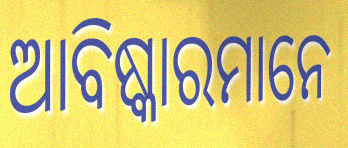
ଆବିଷ୍କାରମାନେ